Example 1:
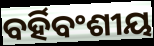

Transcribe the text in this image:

ବର୍ହିବଂଶୀୟ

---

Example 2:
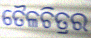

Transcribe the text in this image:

ତୈଳଚିତ୍ରର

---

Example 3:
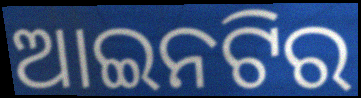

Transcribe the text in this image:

ଆଇନଟିର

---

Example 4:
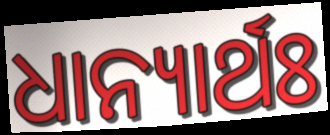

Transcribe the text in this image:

ଧାନ୍ୟାର୍ଥଃ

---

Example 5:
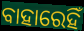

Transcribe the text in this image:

ବାହାରେହିଁ